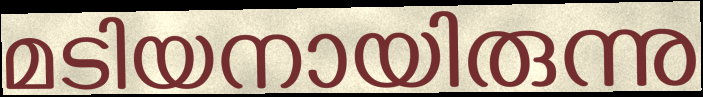
മടിയനായിരുന്നു